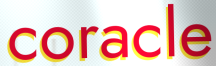
coracle